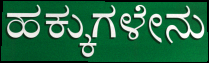
ಹಕ್ಕುಗಳೇನು